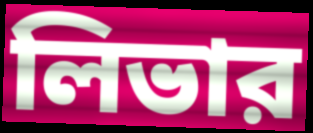
লিভার